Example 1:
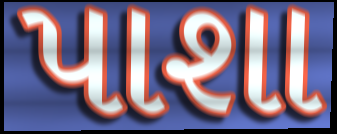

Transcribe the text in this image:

પાશા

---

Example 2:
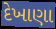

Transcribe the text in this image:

દેખાણા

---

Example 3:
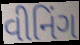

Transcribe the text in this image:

વીનિંગ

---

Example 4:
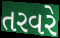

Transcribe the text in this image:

તરવરે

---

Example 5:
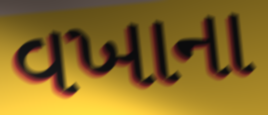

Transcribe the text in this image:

વખાના